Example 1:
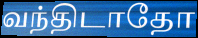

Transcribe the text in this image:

வந்திடாதோ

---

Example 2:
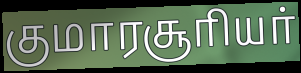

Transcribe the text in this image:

குமாரசூரியர்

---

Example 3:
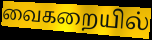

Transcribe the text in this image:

வைகறையில்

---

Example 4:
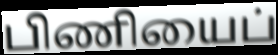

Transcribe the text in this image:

பிணியைப்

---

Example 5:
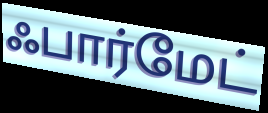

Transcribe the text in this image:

ஃபார்மேட்